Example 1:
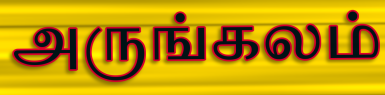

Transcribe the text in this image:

அருங்கலம்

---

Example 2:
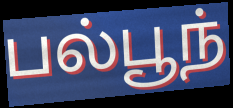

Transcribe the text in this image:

பல்பூந்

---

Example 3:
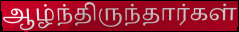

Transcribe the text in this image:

ஆழ்ந்திருந்தார்கள்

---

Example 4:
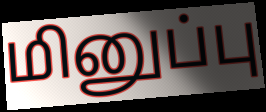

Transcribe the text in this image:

மினுப்பு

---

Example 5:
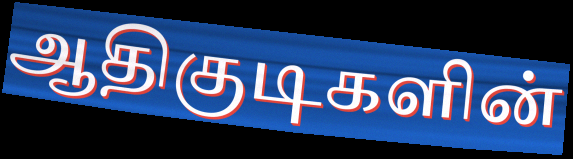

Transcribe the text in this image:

ஆதிகுடிகளின்